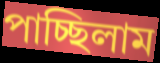
পাচ্ছিলাম